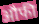
औफी